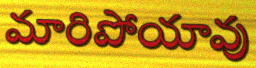
మారిపోయావు